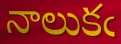
నాలుకఁ